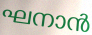
ഘനാൻ